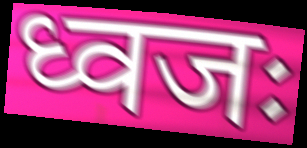
ध्वजः